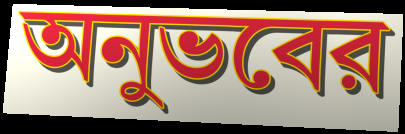
অনুভবের